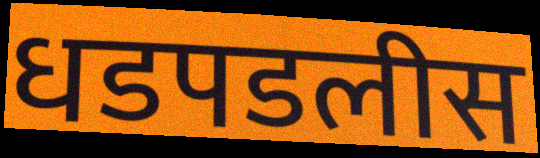
धडपडलीस